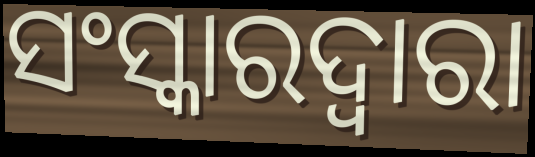
ସଂସ୍କାରଦ୍ୱାରା